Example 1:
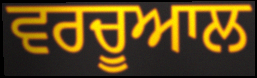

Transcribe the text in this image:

ਵਰਚੂਆਲ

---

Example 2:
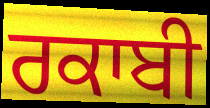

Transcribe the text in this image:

ਰਕਾਬੀ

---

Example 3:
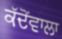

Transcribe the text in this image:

ਕੱਦੋਂਵਾਲਾ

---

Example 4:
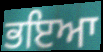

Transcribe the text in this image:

ਭਇਆ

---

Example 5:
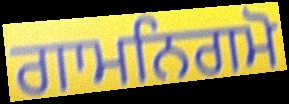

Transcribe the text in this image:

ਗਾਮਨਿਗਮੋ